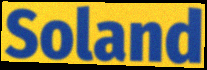
Soland